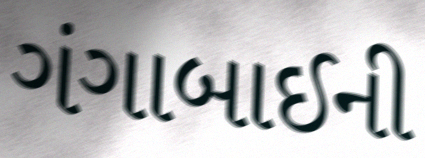
ગંગાબાઈની